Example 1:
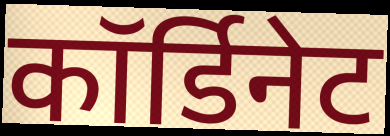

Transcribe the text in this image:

कॉर्डिनेट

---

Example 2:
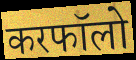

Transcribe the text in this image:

करफॉलो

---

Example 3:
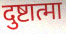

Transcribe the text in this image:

दुष्टात्मा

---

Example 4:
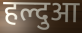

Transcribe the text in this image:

हल्दुआ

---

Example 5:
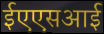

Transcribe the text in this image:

ईएएसआई